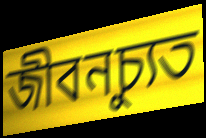
জীবনচ্যুত